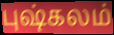
புஷ்கலம்